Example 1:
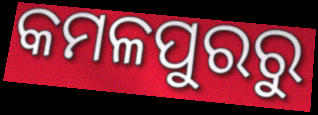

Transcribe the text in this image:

କମଳପୁରରୁ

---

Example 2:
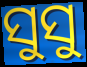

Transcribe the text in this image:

ସୁସୁ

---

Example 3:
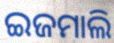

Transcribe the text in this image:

ଇଜମାଲି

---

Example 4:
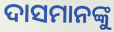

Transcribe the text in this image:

ଦାସମାନଙ୍କୁ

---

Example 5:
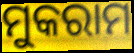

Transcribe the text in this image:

ମୁକରାମ